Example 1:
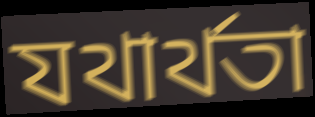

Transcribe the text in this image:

যথার্থতা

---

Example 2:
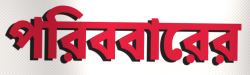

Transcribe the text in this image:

পরিববারের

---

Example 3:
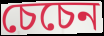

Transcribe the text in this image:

চেচেন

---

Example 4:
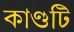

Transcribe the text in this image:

কাণ্ডটি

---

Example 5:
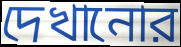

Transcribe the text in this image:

দেখানোর